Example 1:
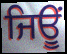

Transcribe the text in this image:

ਜਿਊਂ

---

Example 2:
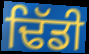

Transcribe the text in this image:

ਢਿੱਡੀ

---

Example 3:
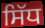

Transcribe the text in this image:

ਸਿੱਧ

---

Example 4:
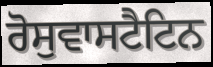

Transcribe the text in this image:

ਰੋਸੁਵਾਸਟੈਟਿਨ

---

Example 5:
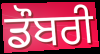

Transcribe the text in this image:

ਡੌਬਰੀ